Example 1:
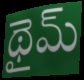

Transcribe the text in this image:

థైమ్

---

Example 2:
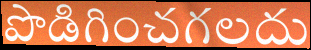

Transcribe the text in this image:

పొడిగించగలదు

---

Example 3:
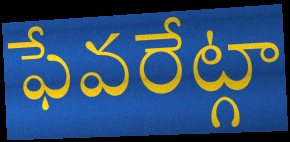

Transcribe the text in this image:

ఫేవరేట్గా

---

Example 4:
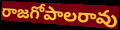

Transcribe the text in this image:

రాజగోపాలరావు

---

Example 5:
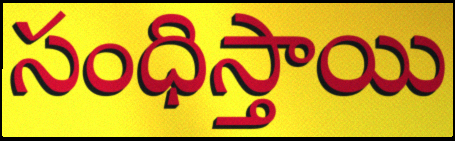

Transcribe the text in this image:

సంధిస్తాయి